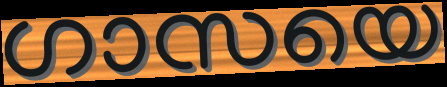
ഗാസയെ